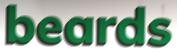
beards